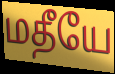
மதீயே